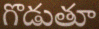
గొడుతూ